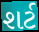
શર્ટ